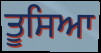
ਤੂਸਿਆ